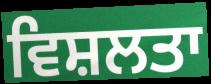
ਵਿਸ਼ਲਤਾ